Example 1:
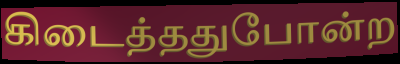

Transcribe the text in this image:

கிடைத்ததுபோன்ற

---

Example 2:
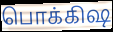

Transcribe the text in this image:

பொக்கிஷ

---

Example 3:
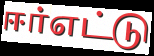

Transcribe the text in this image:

ஈர்எட்டு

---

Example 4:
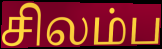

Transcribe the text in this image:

சிலம்ப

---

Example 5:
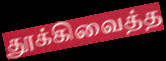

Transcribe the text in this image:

தூக்கிவைத்த